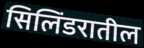
सिलिंडरातील